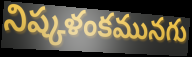
నిష్కళంకమునగు